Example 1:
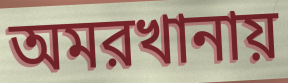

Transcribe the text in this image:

অমরখানায়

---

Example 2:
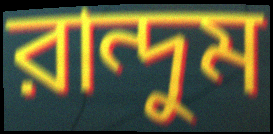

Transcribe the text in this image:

রান্দুম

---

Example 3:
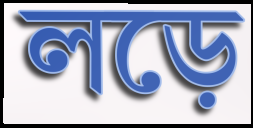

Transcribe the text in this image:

লড়ে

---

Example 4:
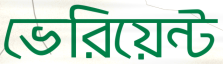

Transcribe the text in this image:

ভেরিয়েন্ট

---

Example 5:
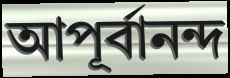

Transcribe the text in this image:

আপূর্বানন্দ